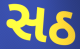
સઠ